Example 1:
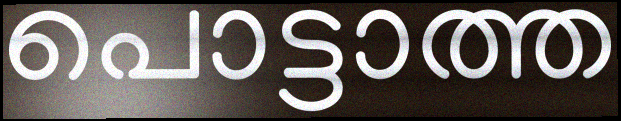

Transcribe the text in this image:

പൊട്ടാത്ത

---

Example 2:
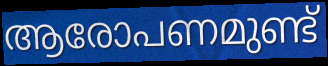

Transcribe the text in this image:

ആരോപണമുണ്ട്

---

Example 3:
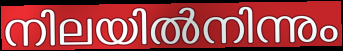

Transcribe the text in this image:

നിലയിൽനിന്നും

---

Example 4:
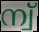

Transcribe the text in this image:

ന്വ്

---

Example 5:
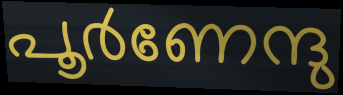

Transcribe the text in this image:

പൂർണേന്ദു